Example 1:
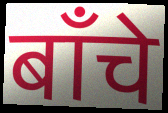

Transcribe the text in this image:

बाँचे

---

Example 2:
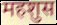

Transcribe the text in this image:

महशुस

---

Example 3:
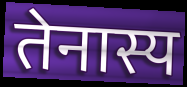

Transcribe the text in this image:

तेनास्य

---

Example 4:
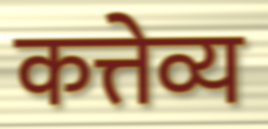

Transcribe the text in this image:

कत्तेव्य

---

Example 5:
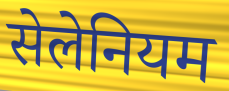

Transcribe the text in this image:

सेलेनियम